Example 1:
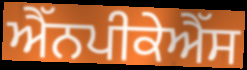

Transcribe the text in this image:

ਐੱਨਪੀਕੇਐੱਸ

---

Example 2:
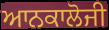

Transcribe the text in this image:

ਆਨਕਾਲੋਜੀ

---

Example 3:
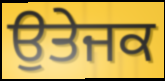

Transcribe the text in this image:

ਉਤੇਜਕ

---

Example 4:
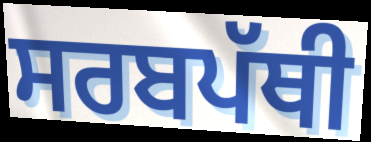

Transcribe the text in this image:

ਸਰਬਪੱਥੀ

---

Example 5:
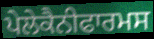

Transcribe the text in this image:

ਪੇਲੇਕੈਨੀਫਾਰਮਸ